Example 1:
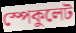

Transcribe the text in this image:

স্পেকুলেট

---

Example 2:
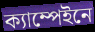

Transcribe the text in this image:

ক্যাম্পেইনে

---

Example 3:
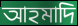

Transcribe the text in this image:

আহমাদি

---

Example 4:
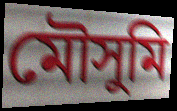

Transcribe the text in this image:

মৌসুমি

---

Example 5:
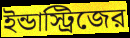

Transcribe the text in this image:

ইন্ডাস্ট্রিজের